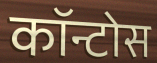
कॉन्टोस